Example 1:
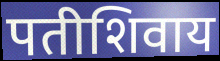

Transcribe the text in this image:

पतीशिवाय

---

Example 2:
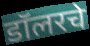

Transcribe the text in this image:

डॉलरचे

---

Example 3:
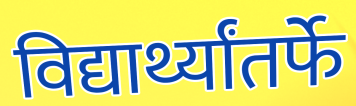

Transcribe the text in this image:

विद्यार्थ्यांतर्फे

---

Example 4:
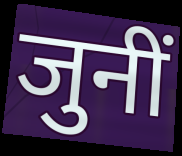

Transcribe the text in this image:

जुनीं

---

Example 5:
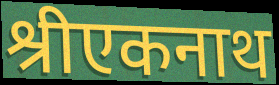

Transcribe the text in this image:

श्रीएकनाथ